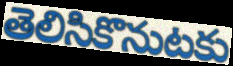
తెలిసికొనుటకు